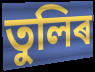
তুলিৰ